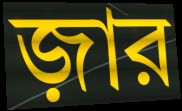
জ়ার